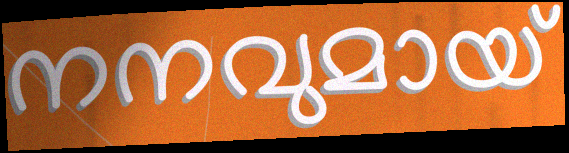
നനവുമായ്